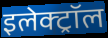
इलेक्ट्रॉल